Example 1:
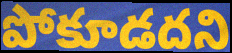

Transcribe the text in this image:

పోకూడదని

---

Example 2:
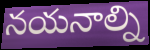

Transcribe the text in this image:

నయనాల్ని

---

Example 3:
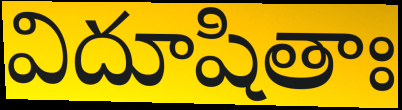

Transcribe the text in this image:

విదూషితాః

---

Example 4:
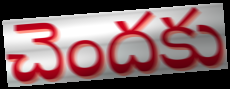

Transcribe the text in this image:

చెందకు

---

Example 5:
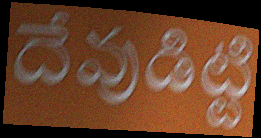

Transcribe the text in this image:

దేవుడిట్టి